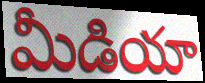
మీడియా